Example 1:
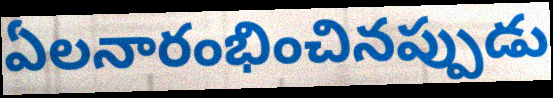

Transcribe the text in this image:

ఏలనారంభించినప్పుడు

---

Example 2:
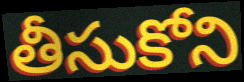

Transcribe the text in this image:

తీసుకోని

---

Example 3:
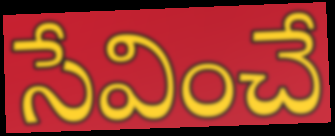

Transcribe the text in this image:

సేవించే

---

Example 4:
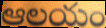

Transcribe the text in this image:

ఆలయం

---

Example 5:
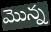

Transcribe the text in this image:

మొన్న